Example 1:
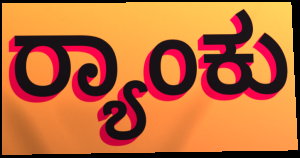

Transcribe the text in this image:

ರ್‍ಯಾಂಕು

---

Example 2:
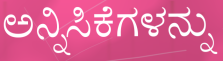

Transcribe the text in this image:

ಅನ್ನಿಸಿಕೆಗಳನ್ನು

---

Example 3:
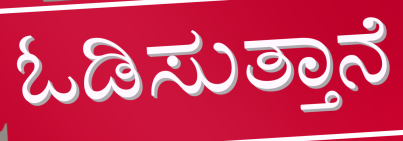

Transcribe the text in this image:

ಓಡಿಸುತ್ತಾನೆ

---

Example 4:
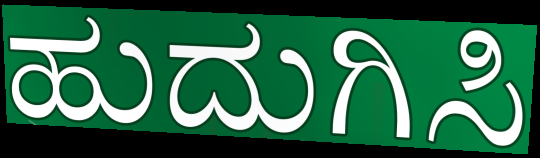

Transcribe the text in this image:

ಹುದುಗಿಸಿ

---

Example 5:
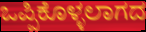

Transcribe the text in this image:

ಒಪ್ಪಿಕೊಳ್ಳಲಾಗದ